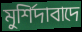
মুর্শিদাবাদে